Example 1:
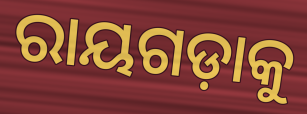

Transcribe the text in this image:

ରାୟଗଡ଼ାକୁ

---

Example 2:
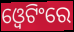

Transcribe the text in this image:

ଓ୍ୱେଟିଂରେ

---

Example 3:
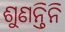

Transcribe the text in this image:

ଶୁଣନ୍ତିନି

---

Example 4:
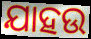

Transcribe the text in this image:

ଯାହଉ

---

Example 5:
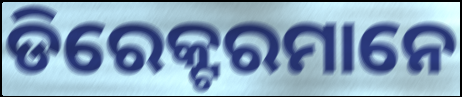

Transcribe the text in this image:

ଡିରେକ୍ଟରମାନେ